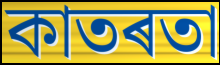
কাতৰতা